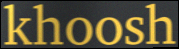
khoosh